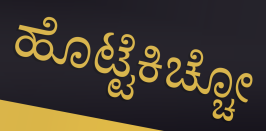
ಹೊಟ್ಟೆಕಿಚ್ಚೋ